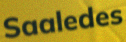
Saaledes